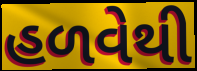
હળવેથી